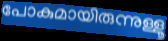
പോകുമായിരുന്നുള്ളൂ